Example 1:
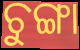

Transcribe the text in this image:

ଚୁଙ୍ଗା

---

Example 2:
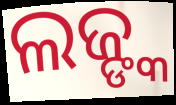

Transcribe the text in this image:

ଲଜ୍ଙ୍କ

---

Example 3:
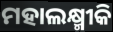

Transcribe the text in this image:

ମହାଲକ୍ଷ୍ମୀକି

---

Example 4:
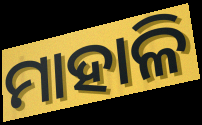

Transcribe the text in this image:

ମାହାଳି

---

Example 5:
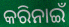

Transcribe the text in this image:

କରିନାଇଁ